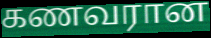
கணவரான